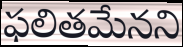
ఫలితమేనని